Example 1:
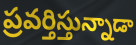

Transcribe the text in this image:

ప్రవర్తిస్తున్నాడా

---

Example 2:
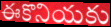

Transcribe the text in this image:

ఈకొనియకు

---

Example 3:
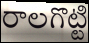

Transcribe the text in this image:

రాలగొట్టి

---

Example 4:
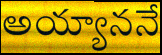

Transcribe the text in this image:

అయ్యాననే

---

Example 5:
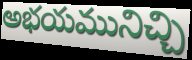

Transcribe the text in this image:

అభయమునిచ్చి